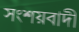
সংশয়বাদী